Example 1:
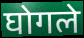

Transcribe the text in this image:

घोगले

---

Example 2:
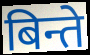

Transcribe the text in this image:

बिन्ते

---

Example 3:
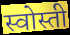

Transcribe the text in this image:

स्वोस्ती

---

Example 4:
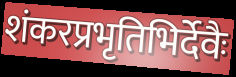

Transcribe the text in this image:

शंकरप्रभृतिभिर्देवैः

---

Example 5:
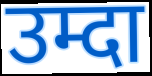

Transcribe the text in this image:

उम्‍दा